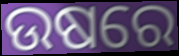
ଉଷରେ